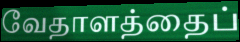
வேதாளத்தைப்